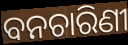
ବନଚାରିଣୀ